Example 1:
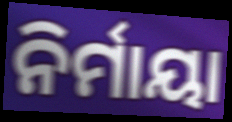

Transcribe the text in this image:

ନିର୍ମାୟା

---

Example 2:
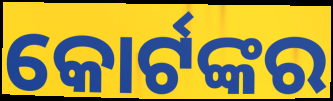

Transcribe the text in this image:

କୋର୍ଟଙ୍କର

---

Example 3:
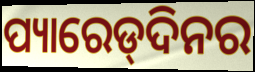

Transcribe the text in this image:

ପ୍ୟାରେଡ୍‌ଦିନର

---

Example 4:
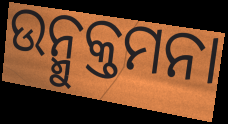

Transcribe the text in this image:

ଉନ୍ମୁକ୍ତମନା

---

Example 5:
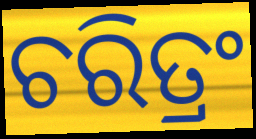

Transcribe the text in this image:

ଚରିତ୍ରଂ